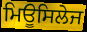
ਮਿਊਸਿਲੇਜ